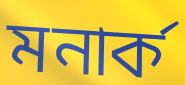
মনার্ক